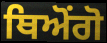
ਥਿਅੋਂਗੋ